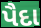
પૈદા